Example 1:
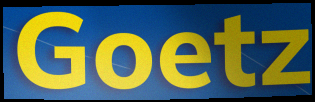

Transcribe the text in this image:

Goetz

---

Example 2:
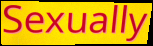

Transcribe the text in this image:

Sexually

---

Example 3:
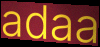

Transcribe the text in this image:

adaa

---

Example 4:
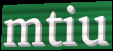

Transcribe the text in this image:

mtiu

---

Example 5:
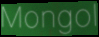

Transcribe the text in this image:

Mongol